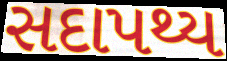
સદાપથ્ય